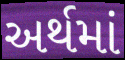
અર્થમાં